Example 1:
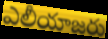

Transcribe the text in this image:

ఎలీయాజరు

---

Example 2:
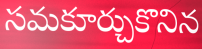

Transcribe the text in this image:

సమకూర్చుకొనిన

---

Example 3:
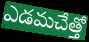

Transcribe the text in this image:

ఎడమచేత్తో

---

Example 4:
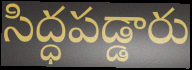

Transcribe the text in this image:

సిద్ధపడ్డారు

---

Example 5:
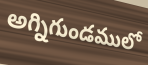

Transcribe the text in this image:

అగ్నిగుండములో